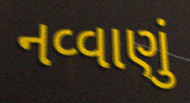
નવ્વાણું